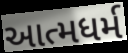
આત્મધર્મ